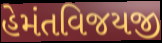
હેમંતવિજયજી